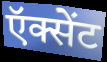
ऍक्सेंट